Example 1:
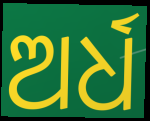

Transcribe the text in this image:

ଅର୍ଧ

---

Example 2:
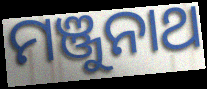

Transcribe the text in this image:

ମଞ୍ଜୁନାଥ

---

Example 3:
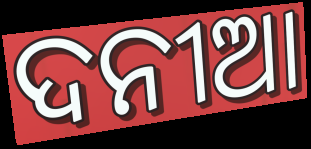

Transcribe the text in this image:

ଦନୀଆ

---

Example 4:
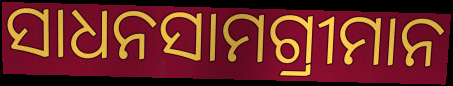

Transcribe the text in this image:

ସାଧନସାମଗ୍ରୀମାନ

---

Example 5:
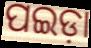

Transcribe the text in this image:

ପଇଡ଼ା